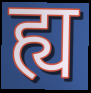
ह्य